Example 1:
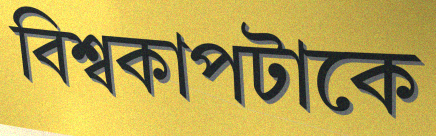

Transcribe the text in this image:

বিশ্বকাপটাকে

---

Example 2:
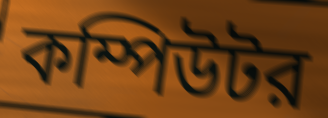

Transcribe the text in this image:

কম্পিউটর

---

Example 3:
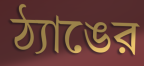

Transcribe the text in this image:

ঠ্যাঙের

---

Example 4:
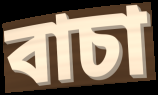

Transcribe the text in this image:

বাচা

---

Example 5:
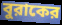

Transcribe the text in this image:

বুরাকের